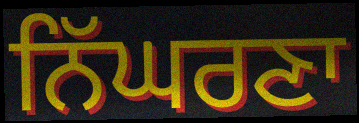
ਨਿੱਘਰਣਾ